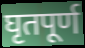
घृतपूर्ण